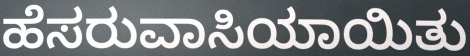
ಹೆಸರುವಾಸಿಯಾಯಿತು